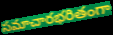
సమాచారభరితంగా